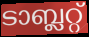
ടാബ്ലറ്റ്